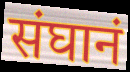
संघानं